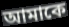
আমাকে